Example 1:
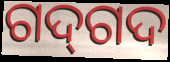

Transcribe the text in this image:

ଗଦ୍‌ଗଦ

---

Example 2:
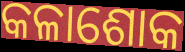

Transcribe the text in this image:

କଳାଶୋକ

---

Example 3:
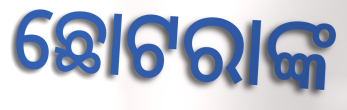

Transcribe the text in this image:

ଛୋଟରାଙ୍କ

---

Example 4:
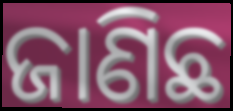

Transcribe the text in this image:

ଜାଣିଛ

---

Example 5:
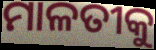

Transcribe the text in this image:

ମାଳତୀକୁ